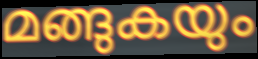
മങ്ങുകയും